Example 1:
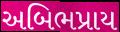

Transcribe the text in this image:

અબિભપ્રાય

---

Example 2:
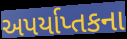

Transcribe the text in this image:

અપર્યાપ્તકના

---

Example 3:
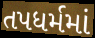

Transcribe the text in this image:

તપધર્મમાં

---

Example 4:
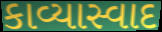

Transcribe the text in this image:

કાવ્યાસ્વાદ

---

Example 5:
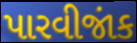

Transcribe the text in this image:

પારવીજાંક